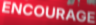
ENCOURAGE